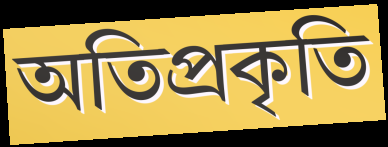
অতিপ্রকৃতি